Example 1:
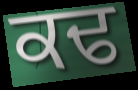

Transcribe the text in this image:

ਕਢ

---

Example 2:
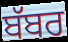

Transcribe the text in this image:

ਬੱਬਰ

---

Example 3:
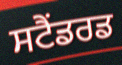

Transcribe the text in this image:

ਸਟੈਂਡਰਡ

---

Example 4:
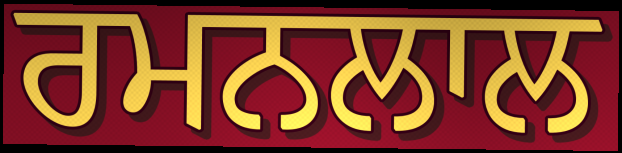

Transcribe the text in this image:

ਰਮਨਲਾਲ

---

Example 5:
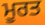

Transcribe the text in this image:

ਮੂਰਤ